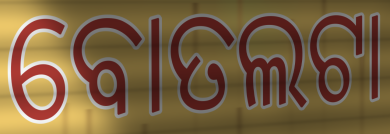
ବୋତଲଟା